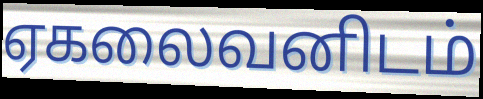
ஏகலைவனிடம்